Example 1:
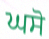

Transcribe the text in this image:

ਘਸੋ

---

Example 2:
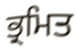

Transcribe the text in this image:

ਭ੍ਰਮਿਤ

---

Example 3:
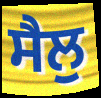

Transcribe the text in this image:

ਸੈਲੁ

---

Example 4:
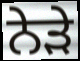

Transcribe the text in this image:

ਨੇਡ਼ੇ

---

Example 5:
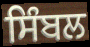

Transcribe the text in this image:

ਸਿੰਬਲ